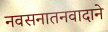
नवसनातनवादाने